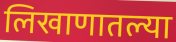
लिखाणातल्या